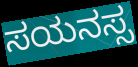
ಸಯನಸ್ಸ